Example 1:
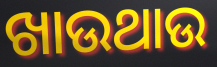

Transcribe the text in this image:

ଖାଉଥାଉ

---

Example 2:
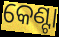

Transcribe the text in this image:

କେଣ୍ଟା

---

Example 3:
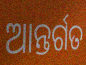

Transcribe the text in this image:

ଆନ୍ତର୍ଗତ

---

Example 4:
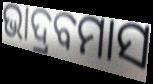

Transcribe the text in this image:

ଭାଦ୍ରବମାସ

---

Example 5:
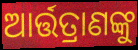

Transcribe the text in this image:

ଆର୍ତ୍ତତ୍ରାଣଙ୍କୁ